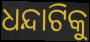
ଧନ୍ଦାଟିକୁ